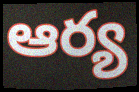
ఆర్య